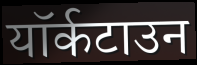
यॉर्कटाउन